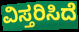
ವಿಸ್ತರಿಸಿದೆ